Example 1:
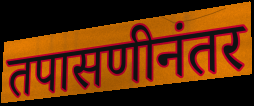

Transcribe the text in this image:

तपासणीनंतर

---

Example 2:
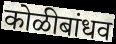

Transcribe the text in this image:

कोळीबांधव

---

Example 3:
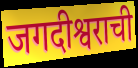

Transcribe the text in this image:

जगदीश्वराची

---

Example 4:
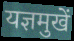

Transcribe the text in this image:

यज्ञमुखें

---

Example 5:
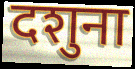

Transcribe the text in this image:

दशुना